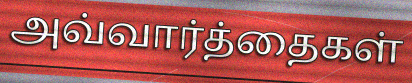
அவ்வார்த்தைகள்